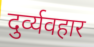
दुर्व्यवहार